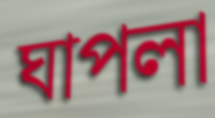
ঘাপলা